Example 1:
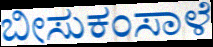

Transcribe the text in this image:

ಬೀಸುಕಂಸಾಳೆ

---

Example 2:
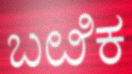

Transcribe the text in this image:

ಬೞಿಕ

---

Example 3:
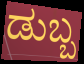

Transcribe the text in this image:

ಡುಬ್ಬ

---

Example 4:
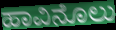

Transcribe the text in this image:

ಹಾವಿನೊಲು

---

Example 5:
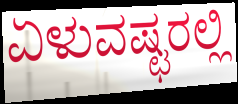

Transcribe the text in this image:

ಏಳುವಷ್ಟರಲ್ಲಿ